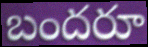
బందరూ